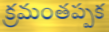
క్రమంతప్పక